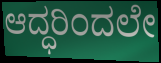
ಆದ್ಧರಿಂದಲೇ